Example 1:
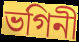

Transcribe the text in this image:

ভগিনী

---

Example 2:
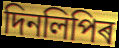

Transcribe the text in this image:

দিনলিপিৰ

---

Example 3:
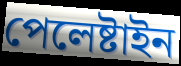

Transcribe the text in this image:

পেলেষ্টাইন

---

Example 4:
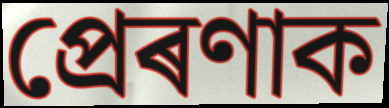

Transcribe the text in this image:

প্ৰেৰণাক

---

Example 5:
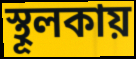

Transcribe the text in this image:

স্থূলকায়